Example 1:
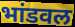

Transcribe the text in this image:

भांडवल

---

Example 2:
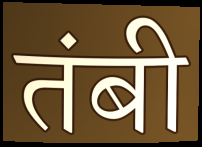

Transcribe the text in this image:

तंबी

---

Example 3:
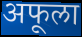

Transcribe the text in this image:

अफूला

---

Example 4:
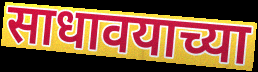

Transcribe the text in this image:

साधावयाच्या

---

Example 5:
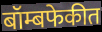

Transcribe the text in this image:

बॉम्बफेकीत